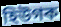
হিউগক